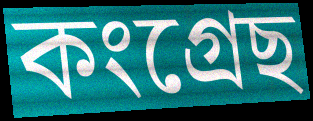
কংগ্ৰেছ